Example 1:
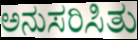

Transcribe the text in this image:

ಅನುಸರಿಸಿತು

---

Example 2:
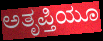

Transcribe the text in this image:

ಅತೃಪ್ತಿಯೂ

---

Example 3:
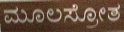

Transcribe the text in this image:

ಮೂಲಸ್ರೋತ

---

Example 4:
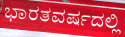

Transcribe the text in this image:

ಭಾರತವರ್ಷದಲ್ಲಿ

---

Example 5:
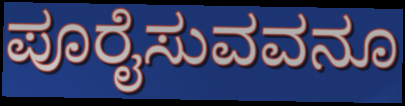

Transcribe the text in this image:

ಪೂರೈಸುವವನೂ